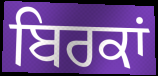
ਬਿਰਕਾਂ